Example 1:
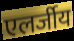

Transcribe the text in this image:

एलर्जीय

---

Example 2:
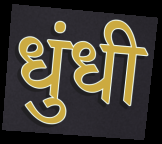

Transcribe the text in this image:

धुंधी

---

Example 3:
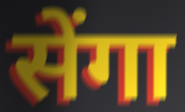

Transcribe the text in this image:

सेंगा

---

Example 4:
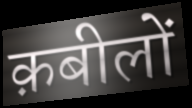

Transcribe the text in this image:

क़बीलों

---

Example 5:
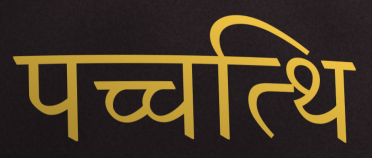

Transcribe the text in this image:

पच्चत्थि